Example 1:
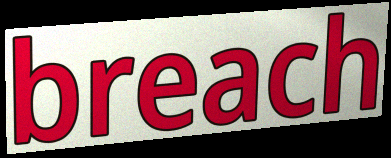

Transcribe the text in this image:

breach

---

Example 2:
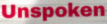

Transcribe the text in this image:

Unspoken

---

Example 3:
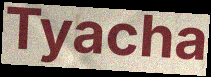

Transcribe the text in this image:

Tyacha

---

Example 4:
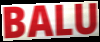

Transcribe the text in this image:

BALU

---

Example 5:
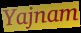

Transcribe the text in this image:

Yajnam